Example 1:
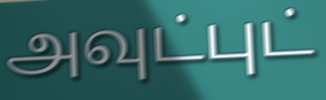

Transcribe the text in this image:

அவுட்புட்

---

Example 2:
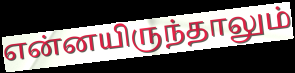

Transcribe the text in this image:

என்னயிருந்தாலும்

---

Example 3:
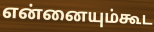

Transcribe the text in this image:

என்னையும்கூட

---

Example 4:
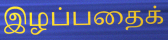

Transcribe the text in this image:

இழப்பதைக்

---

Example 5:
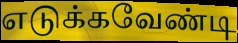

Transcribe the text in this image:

எடுக்கவேண்டி